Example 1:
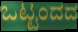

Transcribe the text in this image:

ಒಟ್ಟಂದದ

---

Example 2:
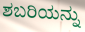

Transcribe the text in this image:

ಶಬರಿಯನ್ನು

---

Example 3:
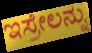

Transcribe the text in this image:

ಇಸ್ರೇಲನ್ನು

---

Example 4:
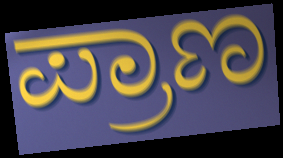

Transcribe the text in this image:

ಪ್ರಾಣ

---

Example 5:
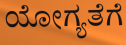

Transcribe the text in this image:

ಯೋಗ್ಯತೆಗೆ